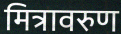
मित्रावरुण